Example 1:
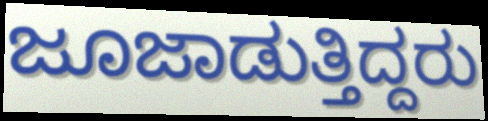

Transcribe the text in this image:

ಜೂಜಾಡುತ್ತಿದ್ದರು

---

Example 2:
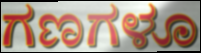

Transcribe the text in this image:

ಗಣಗಳೂ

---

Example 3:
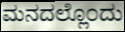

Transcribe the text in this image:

ಮನದಲ್ಲೊಂದು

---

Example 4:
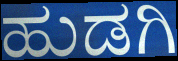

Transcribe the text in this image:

ಹುಡಗಿ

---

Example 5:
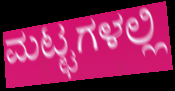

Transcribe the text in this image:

ಮಟ್ಟಗಳಲ್ಲಿ